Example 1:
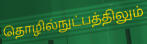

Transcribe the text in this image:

தொழில்நுட்பத்திலும்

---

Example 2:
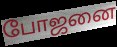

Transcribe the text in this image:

போஜனை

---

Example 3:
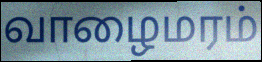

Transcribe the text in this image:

வாழைமரம்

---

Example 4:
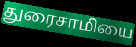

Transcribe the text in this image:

துரைசாமியை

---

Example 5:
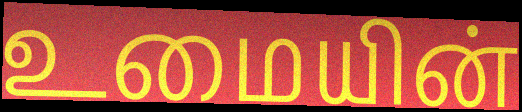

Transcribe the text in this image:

உமையின்